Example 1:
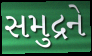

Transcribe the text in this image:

સમુદ્રને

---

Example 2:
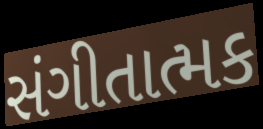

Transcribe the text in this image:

સંગીતાત્મક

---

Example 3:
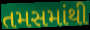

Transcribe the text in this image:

તમસમાંથી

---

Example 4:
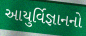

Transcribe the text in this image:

આયુર્વિજ્ઞાનનો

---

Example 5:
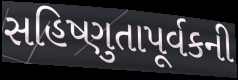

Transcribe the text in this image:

સહિષ્ણુતાપૂર્વકની